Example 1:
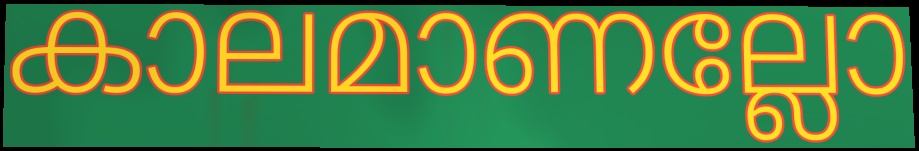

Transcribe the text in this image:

കാലമാണല്ലോ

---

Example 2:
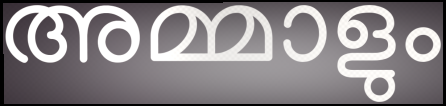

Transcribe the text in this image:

അമ്മാളും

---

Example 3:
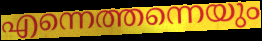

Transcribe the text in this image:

എന്നെത്തന്നെയും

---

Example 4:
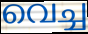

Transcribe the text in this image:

വെച്ച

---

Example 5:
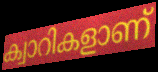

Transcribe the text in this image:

ക്വാറികളാണ്